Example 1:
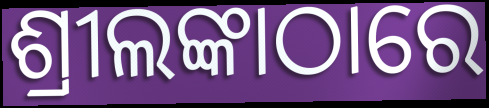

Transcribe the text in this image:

ଶ୍ରୀଲଙ୍କାଠାରେ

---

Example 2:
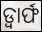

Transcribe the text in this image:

ଡ୍ୱାର୍ଫ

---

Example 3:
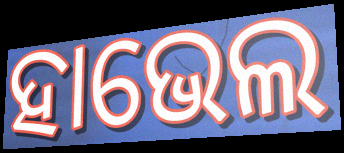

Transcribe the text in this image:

ହାଭେଲ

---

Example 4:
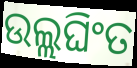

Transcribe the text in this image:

ଉଲ୍ଲଘିଂତ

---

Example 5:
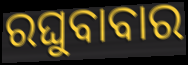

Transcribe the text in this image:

ରଘୁବାବାର